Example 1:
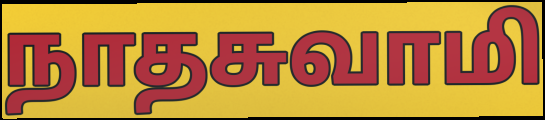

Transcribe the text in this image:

நாதசுவாமி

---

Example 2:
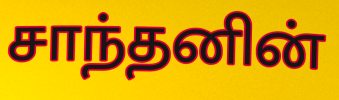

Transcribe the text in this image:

சாந்தனின்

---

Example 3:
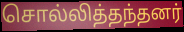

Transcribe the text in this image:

சொல்லித்தந்தனர்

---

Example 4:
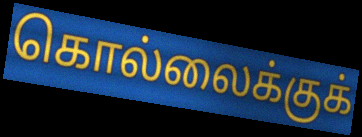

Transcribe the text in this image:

கொல்லைக்குக்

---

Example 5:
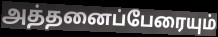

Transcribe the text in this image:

அத்தனைப்பேரையும்